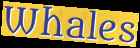
Whales